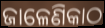
ଜାଳେଣିକାଠ